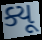
ક્યૂ